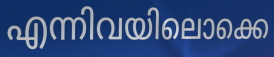
എന്നിവയിലൊക്കെ